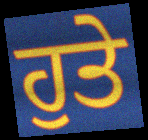
ਹੁਤੇ